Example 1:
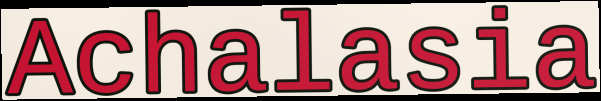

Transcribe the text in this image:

Achalasia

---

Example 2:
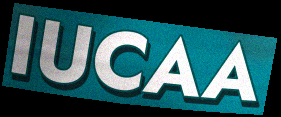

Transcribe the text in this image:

IUCAA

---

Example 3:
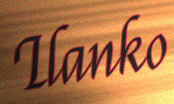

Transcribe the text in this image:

Ilanko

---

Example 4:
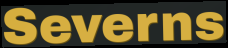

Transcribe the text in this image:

Severns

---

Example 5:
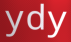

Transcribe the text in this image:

ydy